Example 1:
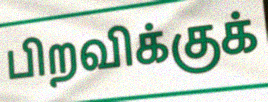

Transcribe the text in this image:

பிறவிக்குக்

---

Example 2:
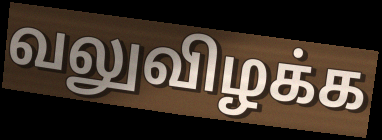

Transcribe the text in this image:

வலுவிழக்க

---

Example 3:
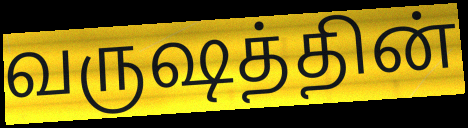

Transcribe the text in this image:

வருஷத்தின்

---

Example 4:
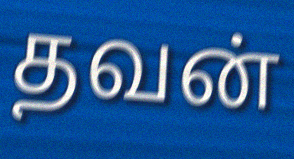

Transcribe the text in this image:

தவன்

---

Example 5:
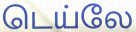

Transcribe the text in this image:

டெய்லே